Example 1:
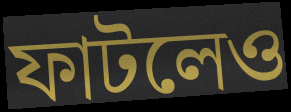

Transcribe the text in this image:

ফাটলেও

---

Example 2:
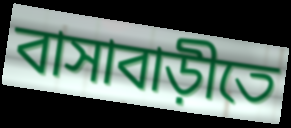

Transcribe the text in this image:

বাসাবাড়ীতে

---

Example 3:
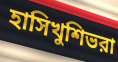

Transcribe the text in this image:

হাসিখুশিভরা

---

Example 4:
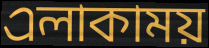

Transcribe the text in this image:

এলাকাময়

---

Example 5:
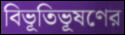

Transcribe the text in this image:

বিভূতিভূষণের